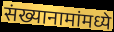
संख्यानामांमध्ये